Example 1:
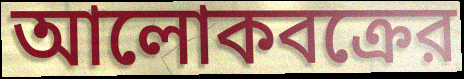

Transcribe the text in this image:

আলোকবক্রের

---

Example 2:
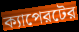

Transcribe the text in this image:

ক্যাপেরটের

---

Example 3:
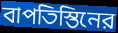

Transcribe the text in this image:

বাপতিস্তিনের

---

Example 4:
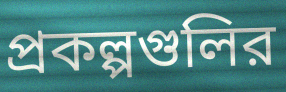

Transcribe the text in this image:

প্রকল্পগুলির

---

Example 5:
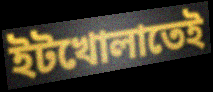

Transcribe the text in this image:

ইটখোলাতেই